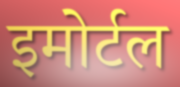
इमोर्टल